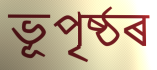
ভূপৃষ্ঠৰ